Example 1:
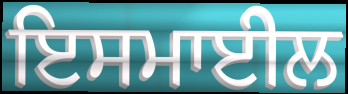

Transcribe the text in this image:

ਇਸਮਾਈਲ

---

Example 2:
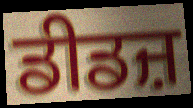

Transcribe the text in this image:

ਡੀਡਜ਼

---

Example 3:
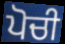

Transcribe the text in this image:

ਪੋਚੀ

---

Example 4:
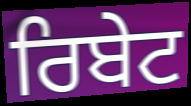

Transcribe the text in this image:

ਰਿਬੇਟ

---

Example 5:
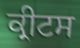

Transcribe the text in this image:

ਕ੍ਰੀਟਸ